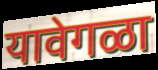
यावेगळा